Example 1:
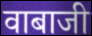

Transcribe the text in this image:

वाबाजी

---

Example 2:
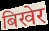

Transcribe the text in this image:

बिखेर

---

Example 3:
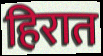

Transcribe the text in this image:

हिरात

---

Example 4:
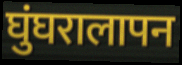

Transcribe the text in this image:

घुंघरालापन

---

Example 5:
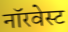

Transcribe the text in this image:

नॉरवेस्ट